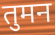
तुमन